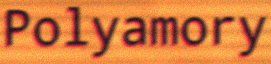
Polyamory